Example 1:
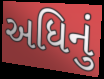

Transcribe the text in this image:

અધિનું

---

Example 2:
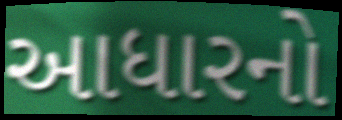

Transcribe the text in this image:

આધારનો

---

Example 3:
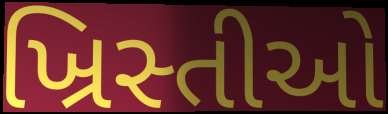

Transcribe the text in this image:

ખ્રિસ્તીઓ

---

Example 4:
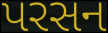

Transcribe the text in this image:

પરસન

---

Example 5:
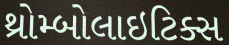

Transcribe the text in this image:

થ્રોમ્બોલાઇટિક્સ